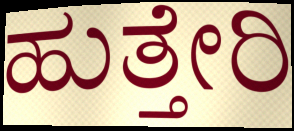
ಹುತ್ತೇರಿ